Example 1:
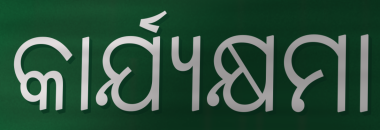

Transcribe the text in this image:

କାର୍ଯ୍ୟକ୍ଷମା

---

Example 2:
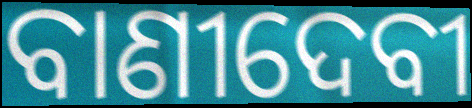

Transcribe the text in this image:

ବାଣୀଦେବୀ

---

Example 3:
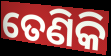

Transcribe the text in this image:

ତେଣିକି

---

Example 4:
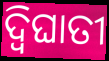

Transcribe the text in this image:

ଦ୍ବିଘାତୀ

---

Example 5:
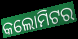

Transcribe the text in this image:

କଲୋମିଟର